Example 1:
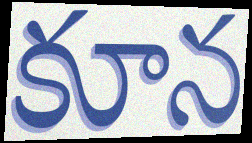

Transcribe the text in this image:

కూన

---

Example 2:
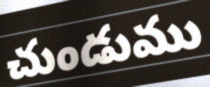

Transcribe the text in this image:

చుండుము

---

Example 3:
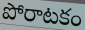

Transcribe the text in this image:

పోరాటకం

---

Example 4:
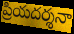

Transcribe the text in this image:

ప్రియదర్శనా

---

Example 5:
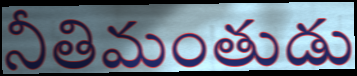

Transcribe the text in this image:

నీతిమంతుడు